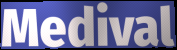
Medival